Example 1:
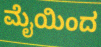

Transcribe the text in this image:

ಮೈಯಿಂದ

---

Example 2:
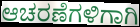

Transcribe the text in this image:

ಆಚರಣೆಗಳಿಗಾಗಿ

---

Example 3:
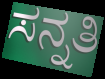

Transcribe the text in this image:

ಸನ್ನತಿ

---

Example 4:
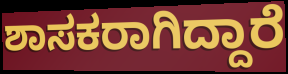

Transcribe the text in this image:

ಶಾಸಕರಾಗಿದ್ದಾರೆ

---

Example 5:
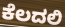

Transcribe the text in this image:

ಕೆಲದಲಿ